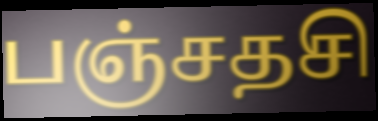
பஞ்சதசி